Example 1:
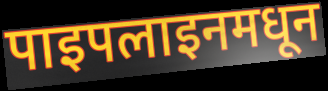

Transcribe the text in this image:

पाइपलाइनमधून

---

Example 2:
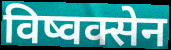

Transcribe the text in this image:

विष्वक्सेन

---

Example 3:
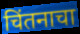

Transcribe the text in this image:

चिंतनाचा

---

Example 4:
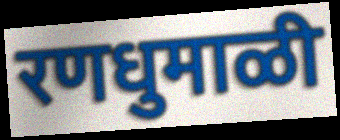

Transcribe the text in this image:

रणधुमाळी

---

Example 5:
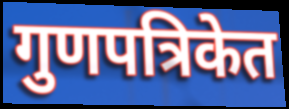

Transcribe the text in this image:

गुणपत्रिकेत